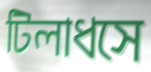
টিলাধসে